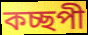
কচ্ছপী